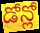
డోన్లో